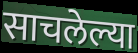
साचलेल्या